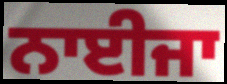
ਨਾਈਜਾ